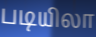
படியிலா